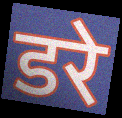
डरे